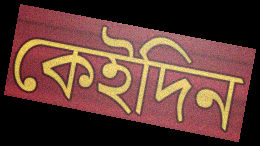
কেইদিন